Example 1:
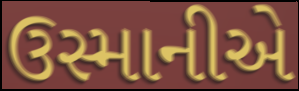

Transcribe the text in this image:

ઉસ્માનીએ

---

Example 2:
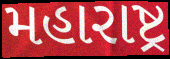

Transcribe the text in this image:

મહારાષ્ટ્ર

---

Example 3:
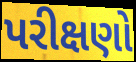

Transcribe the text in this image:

પરીક્ષણો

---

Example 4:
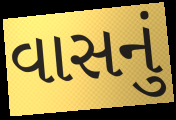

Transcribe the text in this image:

વાસનું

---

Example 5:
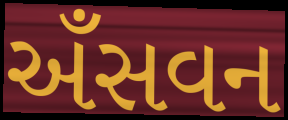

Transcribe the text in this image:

અઁસવન